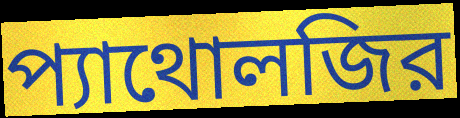
প্যাথোলজির